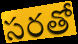
సరతో